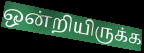
ஒன்றியிருக்க